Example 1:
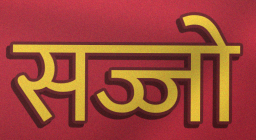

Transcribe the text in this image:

सज्जो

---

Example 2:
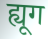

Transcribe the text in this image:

ह्यूग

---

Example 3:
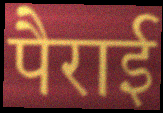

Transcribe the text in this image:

पैराई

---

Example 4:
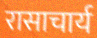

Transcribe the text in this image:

रासाचार्य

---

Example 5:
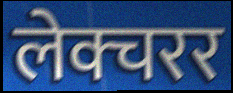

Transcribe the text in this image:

लेक्‍चरर